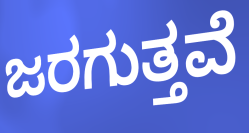
ಜರಗುತ್ತವೆ